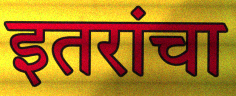
इतरांचा